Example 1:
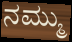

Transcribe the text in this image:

ನಮ್ಮು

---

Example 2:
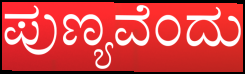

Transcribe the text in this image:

ಪುಣ್ಯವೆಂದು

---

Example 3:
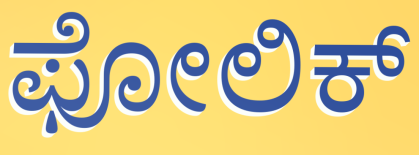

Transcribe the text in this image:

ಫೋಲಿಕ್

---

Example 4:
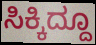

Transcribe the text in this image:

ಸಿಕ್ಕಿದ್ದೂ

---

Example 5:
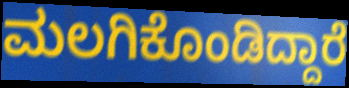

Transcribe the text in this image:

ಮಲಗಿಕೊಂಡಿದ್ದಾರೆ